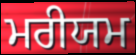
ਮਰੀਯਮ